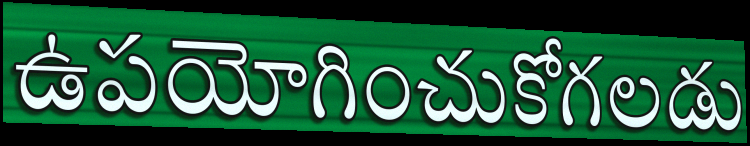
ఉపయోగించుకోగలడు